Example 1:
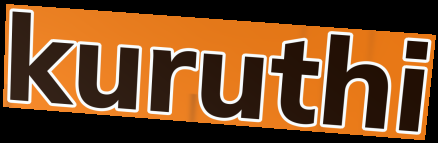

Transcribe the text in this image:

kuruthi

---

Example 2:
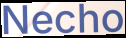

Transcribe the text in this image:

Necho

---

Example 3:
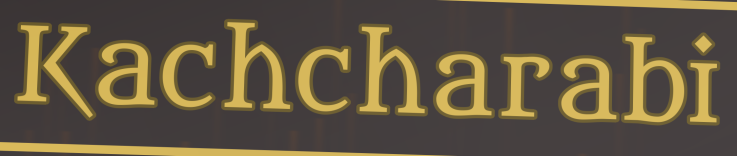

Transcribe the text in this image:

Kachcharabi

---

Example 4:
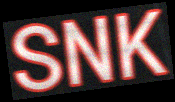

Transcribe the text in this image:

SNK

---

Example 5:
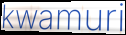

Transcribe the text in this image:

kwamuri